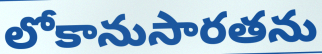
లోకానుసారతను